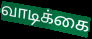
வாடிக்கை